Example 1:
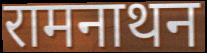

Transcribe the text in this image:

रामनाथन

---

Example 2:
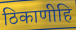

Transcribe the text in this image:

ठिकाणीहि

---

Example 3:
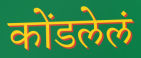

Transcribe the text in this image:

कोंडलेलं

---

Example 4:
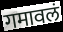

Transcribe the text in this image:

गमावलं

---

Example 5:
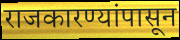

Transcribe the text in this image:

राजकारण्यांपासून